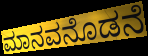
ಮಾನವನೊಡನೆ